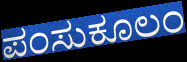
ಪಂಸುಕೂಲಂ